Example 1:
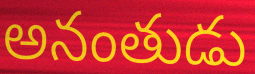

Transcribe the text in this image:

అనంతుడు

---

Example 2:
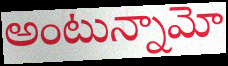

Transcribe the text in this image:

అంటున్నామో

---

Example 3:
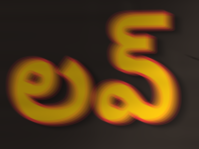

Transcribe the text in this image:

లవ్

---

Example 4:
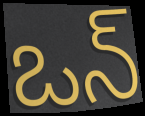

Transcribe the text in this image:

ఒన్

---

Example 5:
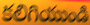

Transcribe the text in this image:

కలిగియుండి